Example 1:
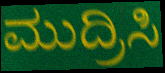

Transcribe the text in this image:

ಮುದ್ರಿಸಿ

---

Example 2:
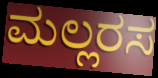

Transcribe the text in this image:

ಮಲ್ಲರಸ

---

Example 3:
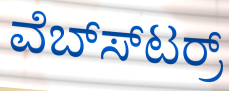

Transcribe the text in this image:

ವೆಬ್ಸ್‍ಟರ್ರ್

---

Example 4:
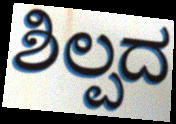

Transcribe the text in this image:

ಶಿಲ್ಪದ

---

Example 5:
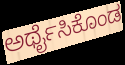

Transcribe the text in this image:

ಅರ್ಥೈಸಿಕೊಂಡ